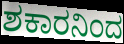
ಶಕಾರನಿಂದ